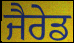
ਜੈਰੇਡ